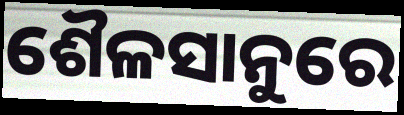
ଶୈଳସାନୁରେ